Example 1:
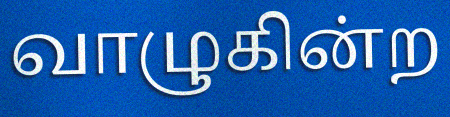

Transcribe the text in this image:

வாழுகின்ற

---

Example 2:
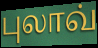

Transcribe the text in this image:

புலாவ்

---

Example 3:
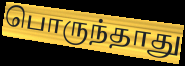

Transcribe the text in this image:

பொருந்தாது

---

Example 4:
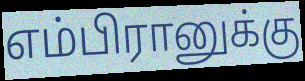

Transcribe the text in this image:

எம்பிரானுக்கு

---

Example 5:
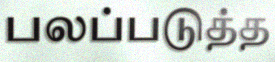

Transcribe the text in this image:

பலப்படுத்த